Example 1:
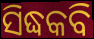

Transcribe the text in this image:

ସିଦ୍ଧକବି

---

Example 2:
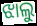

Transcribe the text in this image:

ଝାଲୁ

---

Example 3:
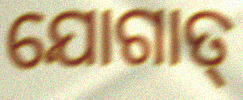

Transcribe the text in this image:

ଯୋଗାତ୍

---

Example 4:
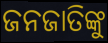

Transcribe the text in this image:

ଜନଜାତିଙ୍କୁ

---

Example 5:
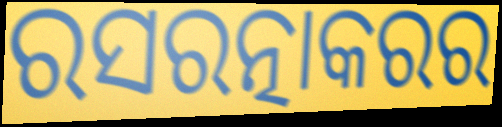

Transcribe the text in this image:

ରସରତ୍ନାକରର